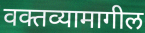
वक्तव्यामागील